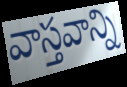
వాస్తవాన్ని